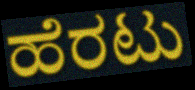
ಹೆರಟು